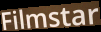
Filmstar